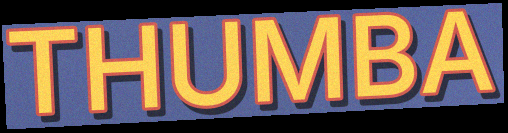
THUMBA